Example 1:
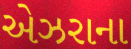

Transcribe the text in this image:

એઝરાના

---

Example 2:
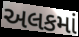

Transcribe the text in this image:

અલકમાં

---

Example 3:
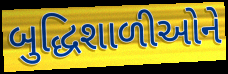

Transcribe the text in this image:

બુદ્ધિશાળીઓને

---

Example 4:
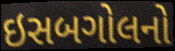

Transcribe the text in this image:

ઇસબગોલનો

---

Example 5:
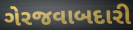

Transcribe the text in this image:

ગેરજવાબદારી